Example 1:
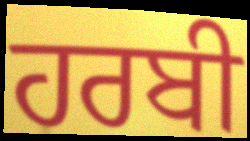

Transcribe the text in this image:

ਹਰਬੀ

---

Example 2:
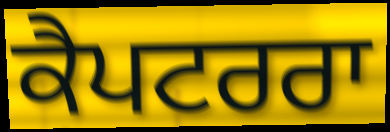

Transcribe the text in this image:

ਕੈਪਟਰਰਾ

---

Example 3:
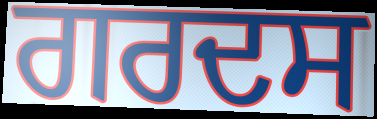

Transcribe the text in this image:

ਗਰਦਸ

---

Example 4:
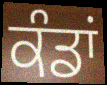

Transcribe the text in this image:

ਕੰਡਾਂ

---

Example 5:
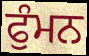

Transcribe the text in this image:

ਫੁੰਮਨ